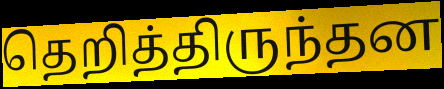
தெறித்திருந்தன